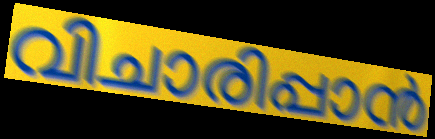
വിചാരിപ്പാൻ